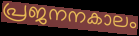
പ്രജനനകാലം